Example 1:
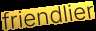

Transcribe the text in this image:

friendlier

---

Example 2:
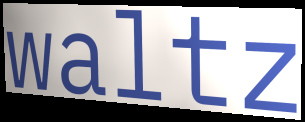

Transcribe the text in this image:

waltz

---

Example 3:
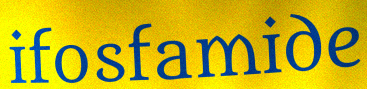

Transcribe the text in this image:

ifosfamide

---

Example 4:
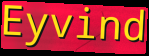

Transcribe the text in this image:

Eyvind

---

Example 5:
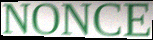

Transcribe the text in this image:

NONCE